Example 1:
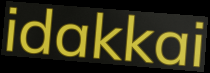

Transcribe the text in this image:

idakkai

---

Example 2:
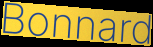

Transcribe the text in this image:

Bonnard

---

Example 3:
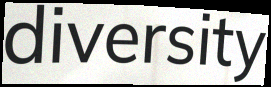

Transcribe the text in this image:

diversity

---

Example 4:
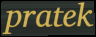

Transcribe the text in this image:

pratek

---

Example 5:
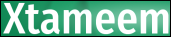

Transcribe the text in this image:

Xtameem